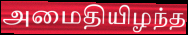
அமைதியிழந்த